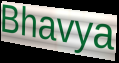
Bhavya